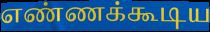
எண்ணக்கூடிய